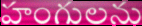
హంగులను